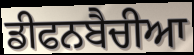
ਡੀਫਨਬੈਚੀਆ